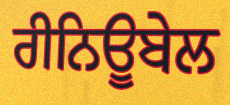
ਰੀਨਿਊਬੇਲ